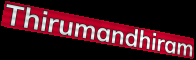
Thirumandhiram